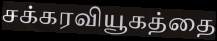
சக்கரவியூகத்தை